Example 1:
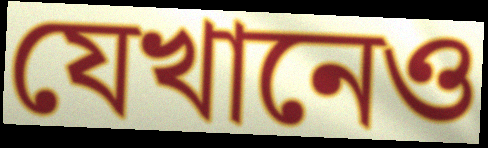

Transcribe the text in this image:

যেখানেও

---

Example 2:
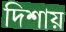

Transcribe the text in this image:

দিশায়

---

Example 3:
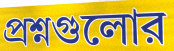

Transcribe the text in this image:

প্রশ্নগুলোর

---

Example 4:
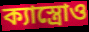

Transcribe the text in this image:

ক্যাস্ত্রোও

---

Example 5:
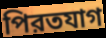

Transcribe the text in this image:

পিরতযাগ